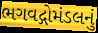
ભગવદ્ગોમંડલનું